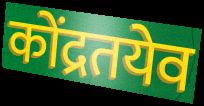
कोंद्रतयेव